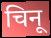
चिनू